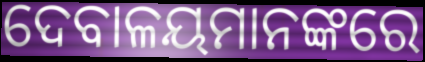
ଦେବାଳୟମାନଙ୍କରେ